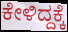
ಕೇಳಿದ್ದಕ್ಕೆ